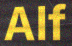
Alf